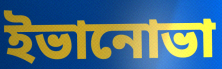
ইভানোভা